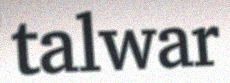
talwar